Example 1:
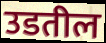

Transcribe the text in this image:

उडतील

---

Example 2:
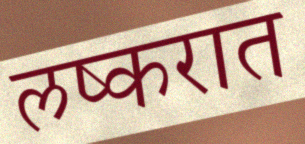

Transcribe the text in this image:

लष्करात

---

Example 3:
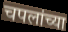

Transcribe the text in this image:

चपलांच्या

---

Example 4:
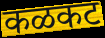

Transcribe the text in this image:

कळकट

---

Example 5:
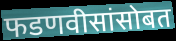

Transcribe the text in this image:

फडणवीसांसोबत